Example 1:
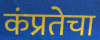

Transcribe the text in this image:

कंप्रतेचा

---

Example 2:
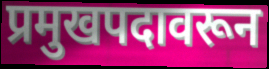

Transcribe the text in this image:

प्रमुखपदावरून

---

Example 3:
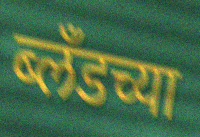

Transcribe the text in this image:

ब्लँडच्या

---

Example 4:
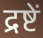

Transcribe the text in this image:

द्रष्टें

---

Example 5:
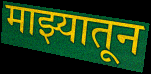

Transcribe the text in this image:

माझ्यातून